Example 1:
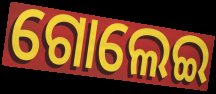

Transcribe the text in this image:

ଗୋଲେଇ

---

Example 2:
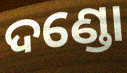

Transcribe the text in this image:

ଦଣ୍ଡୋ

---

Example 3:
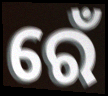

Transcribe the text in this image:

ରେଁ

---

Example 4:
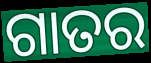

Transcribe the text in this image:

ଗାତର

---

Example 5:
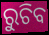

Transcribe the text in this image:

ରୁଚିବ